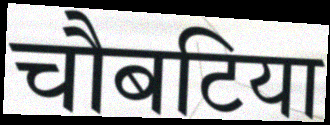
चौबटिया